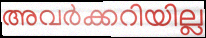
അവർക്കറിയില്ല